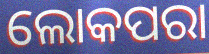
ଲୋକପରା